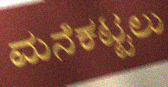
ಮನೆಕಟ್ಟಲು